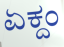
ಏಕ್ದಂ